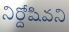
నిర్దోషివని